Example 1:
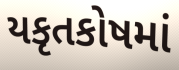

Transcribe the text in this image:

યકૃતકોષમાં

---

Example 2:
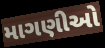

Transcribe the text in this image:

માગણીઓ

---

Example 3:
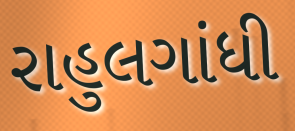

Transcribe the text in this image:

રાહુલગાંધી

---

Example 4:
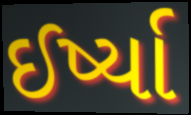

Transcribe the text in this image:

ઈર્ષ્યા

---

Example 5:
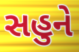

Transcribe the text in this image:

સહુને